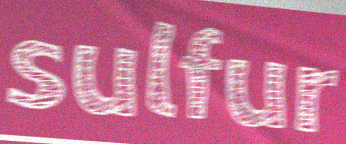
sulfur